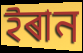
ইৰান